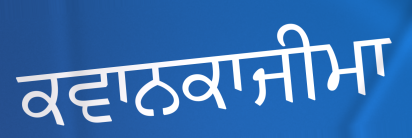
ਕਵਾਨਕਾਜੀਮਾ